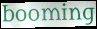
booming